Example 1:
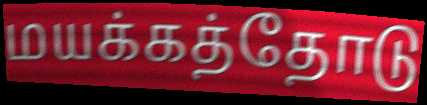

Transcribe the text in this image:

மயக்கத்தோடு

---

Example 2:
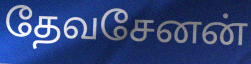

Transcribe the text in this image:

தேவசேனன்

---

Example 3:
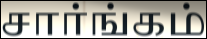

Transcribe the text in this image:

சார்ங்கம்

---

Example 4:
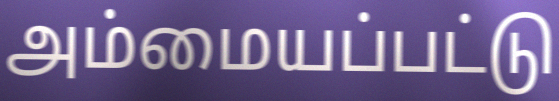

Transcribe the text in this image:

அம்மையப்பட்டு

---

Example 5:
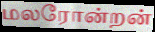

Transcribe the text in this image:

மலரோன்றன்